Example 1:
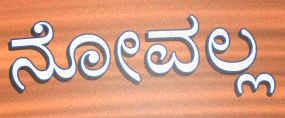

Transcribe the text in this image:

ನೋವಲ್ಲ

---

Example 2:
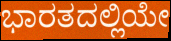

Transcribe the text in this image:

ಭಾರತದಲ್ಲಿಯೇ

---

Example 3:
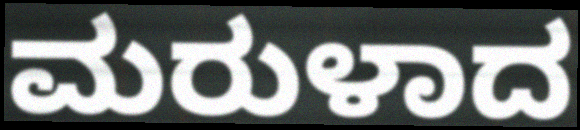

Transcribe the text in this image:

ಮರುಳಾದ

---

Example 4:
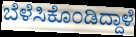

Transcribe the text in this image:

ಬೆಳೆಸಿಕೊಂಡಿದ್ದಾಳೆ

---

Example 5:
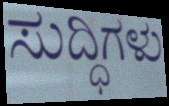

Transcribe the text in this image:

ಸುದ್ಧಿಗಳು